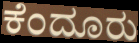
ಕೆಂದೂರು